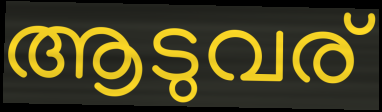
ആടുവര്